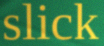
slick